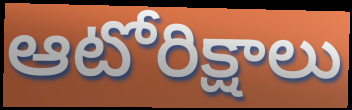
ఆటోరిక్షాలు